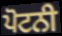
ਪੋਟਨੀ